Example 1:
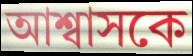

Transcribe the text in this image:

আশ্বাসকে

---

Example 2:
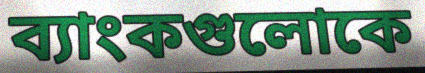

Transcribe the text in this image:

ব্যাংকগুলোকে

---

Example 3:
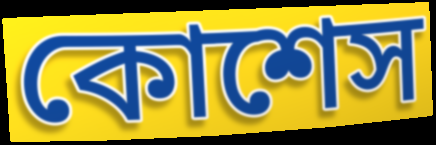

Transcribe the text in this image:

কোশেস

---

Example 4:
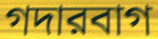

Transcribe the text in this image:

গদারবাগ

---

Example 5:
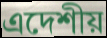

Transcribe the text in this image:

এদেশীয়